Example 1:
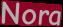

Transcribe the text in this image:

Nora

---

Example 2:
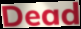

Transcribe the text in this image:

Dead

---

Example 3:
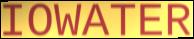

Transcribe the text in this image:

IOWATER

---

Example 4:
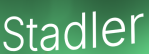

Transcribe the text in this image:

Stadler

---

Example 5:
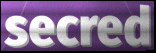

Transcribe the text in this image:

secred